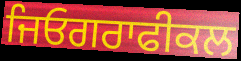
ਜਿਓਗਰਾਫੀਕਲ